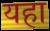
यहा